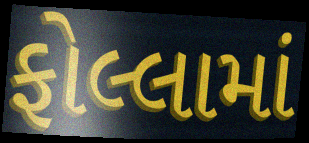
ફોલ્લામાં